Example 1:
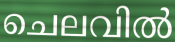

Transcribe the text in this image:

ചെലവിൽ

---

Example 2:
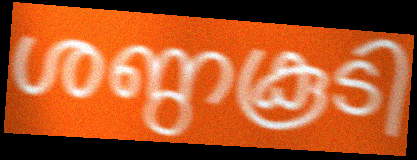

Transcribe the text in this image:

ശണ്ഠകൂടി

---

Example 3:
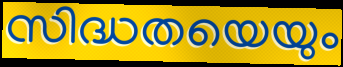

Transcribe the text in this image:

സിദ്ധതയെയും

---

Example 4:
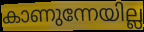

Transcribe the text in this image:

കാണുന്നേയില്ല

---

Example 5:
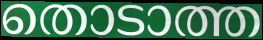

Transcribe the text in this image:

തൊടാത്ത